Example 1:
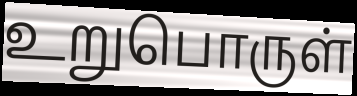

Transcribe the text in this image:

உறுபொருள்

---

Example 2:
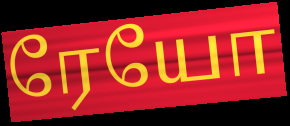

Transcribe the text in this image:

ரேயோ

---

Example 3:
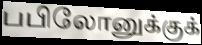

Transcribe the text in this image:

பபிலோனுக்குக்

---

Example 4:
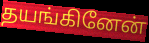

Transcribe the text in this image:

தயங்கினேன்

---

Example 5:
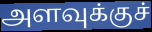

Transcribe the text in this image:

அளவுக்குச்